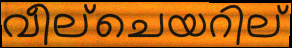
വീല്ചെയറില്